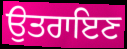
ਉਤਰਾਇਣ